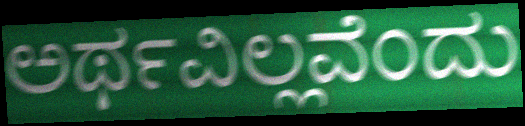
ಅರ್ಥವಿಲ್ಲವೆಂದು